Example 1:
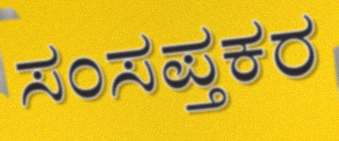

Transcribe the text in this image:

ಸಂಸಪ್ತಕರ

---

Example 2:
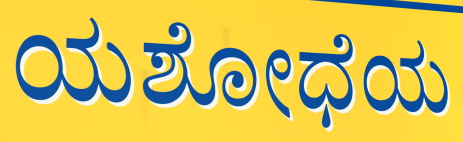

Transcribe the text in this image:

ಯಶೋಧೆಯ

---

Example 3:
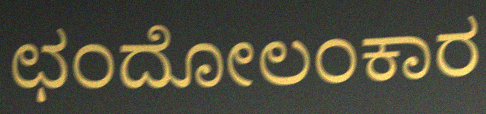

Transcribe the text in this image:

ಛಂದೋಲಂಕಾರ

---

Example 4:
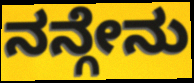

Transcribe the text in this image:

ನನ್ಗೇನು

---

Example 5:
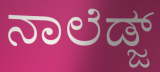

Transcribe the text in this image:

ನಾಲೆಡ್ಜ್